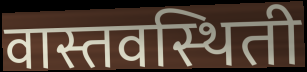
वास्तवस्थिती